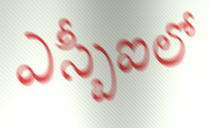
ఎస్బీఐలో